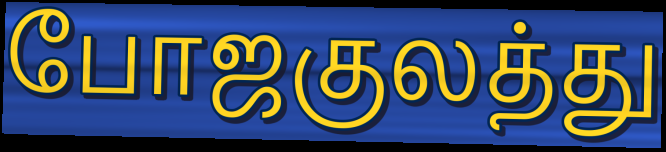
போஜகுலத்து